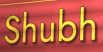
Shubh